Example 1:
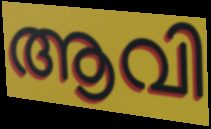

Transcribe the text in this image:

ആവി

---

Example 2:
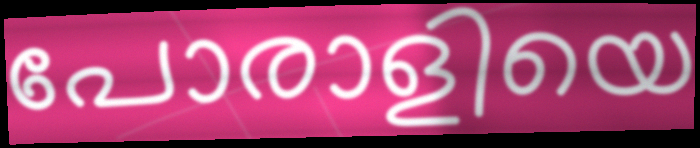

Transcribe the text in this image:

പോരാളിയെ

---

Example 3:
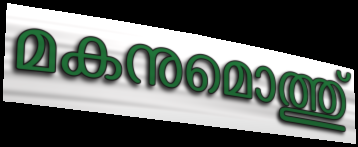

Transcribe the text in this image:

മകനുമൊത്തു്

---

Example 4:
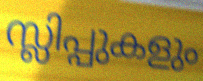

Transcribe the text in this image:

സ്ലിപ്പുകളും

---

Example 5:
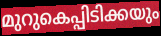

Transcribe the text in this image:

മുറുകെപ്പിടിക്കയും